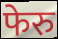
फेरु